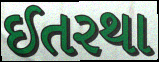
ઈતરથા